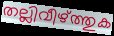
തല്ലിവീഴ്ത്തുക